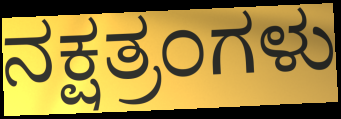
ನಕ್ಷತ್ರಂಗಳು